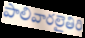
పాలివారలైతిరి